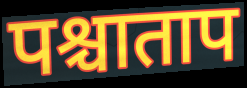
पश्चाताप